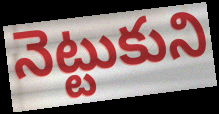
నెట్టుకుని